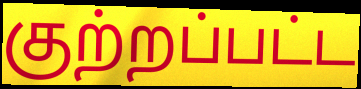
குற்றப்பட்ட